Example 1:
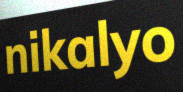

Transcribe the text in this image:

nikalyo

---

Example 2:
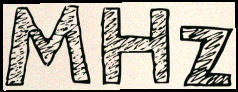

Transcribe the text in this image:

MHz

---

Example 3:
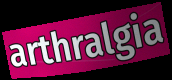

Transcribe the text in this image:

arthralgia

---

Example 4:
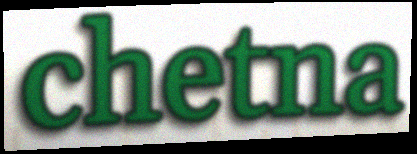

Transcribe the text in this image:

chetna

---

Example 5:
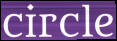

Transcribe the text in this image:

circle